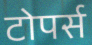
टोपर्स